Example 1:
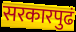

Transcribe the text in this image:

सरकारपुढं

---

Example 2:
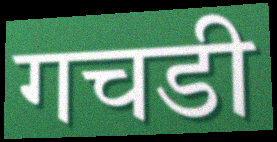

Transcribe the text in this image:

गचडी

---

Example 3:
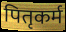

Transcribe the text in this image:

पितृकर्म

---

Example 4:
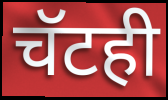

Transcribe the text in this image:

चॅटही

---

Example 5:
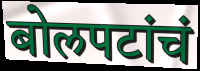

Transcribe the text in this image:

बोलपटांचं